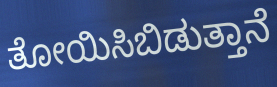
ತೋಯಿಸಿಬಿಡುತ್ತಾನೆ